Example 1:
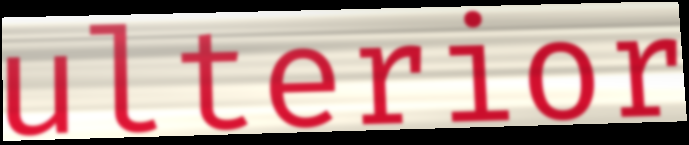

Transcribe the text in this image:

ulterior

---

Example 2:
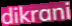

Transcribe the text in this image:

dikrani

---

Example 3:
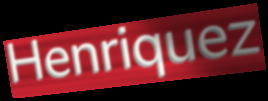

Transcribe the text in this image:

Henriquez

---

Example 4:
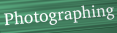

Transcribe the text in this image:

Photographing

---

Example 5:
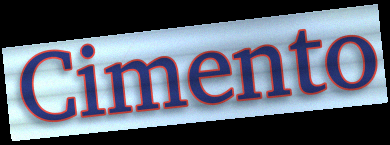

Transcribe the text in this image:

Cimento